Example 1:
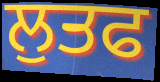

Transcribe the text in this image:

ਲੁਤਫ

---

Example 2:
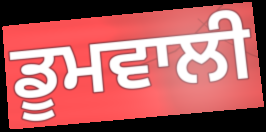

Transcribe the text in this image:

ਡੂਮਵਾਲੀ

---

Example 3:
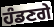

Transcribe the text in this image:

ਹੰਡਣਗੇ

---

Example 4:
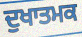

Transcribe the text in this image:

ਦੁਖਾਤਮਕ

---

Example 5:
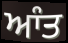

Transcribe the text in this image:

ਆੰਤ